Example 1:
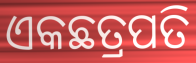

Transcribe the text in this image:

ଏକଛତ୍ରପତି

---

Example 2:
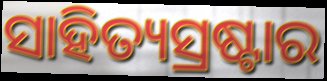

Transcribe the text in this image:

ସାହିତ୍ୟସ୍ରଷ୍ଟାର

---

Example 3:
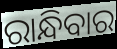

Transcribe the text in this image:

ରାନ୍ଧିବାର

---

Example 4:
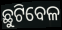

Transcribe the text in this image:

ଛୁଟିବେଳ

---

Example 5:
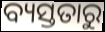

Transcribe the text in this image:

ବ୍ୟସ୍ତତାରୁ